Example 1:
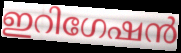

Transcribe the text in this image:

ഇറിഗേഷൻ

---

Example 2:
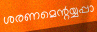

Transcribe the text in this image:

ശരണമെന്റയ്യപ്പാ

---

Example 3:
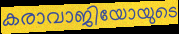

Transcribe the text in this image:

കരാവാജിയോയുടെ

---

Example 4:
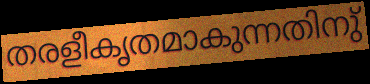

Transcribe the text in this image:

തരളീകൃതമാകുന്നതിനു്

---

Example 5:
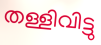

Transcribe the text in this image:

തള്ളിവിട്ടു